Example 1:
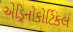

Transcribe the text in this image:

એડ્રિનોકોર્ટિકલ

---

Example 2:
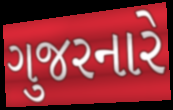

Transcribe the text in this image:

ગુજરનારે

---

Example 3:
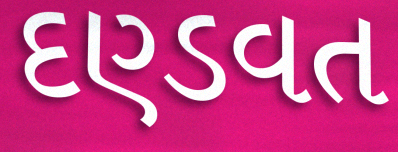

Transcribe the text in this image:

દણ્ડવત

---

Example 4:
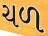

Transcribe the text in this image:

ચળ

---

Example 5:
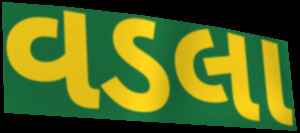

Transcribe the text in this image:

વડલા